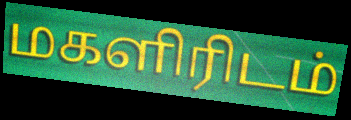
மகளிரிடம்